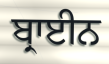
ਬ੍ਰਾਈਨ